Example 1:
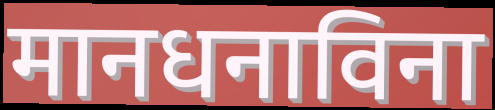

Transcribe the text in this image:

मानधनाविना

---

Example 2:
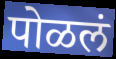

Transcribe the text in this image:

पोळलं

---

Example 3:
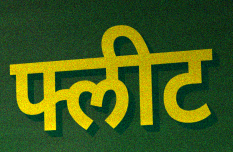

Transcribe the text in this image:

फ्लीट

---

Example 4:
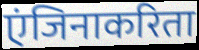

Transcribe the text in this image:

एंजिनाकरिता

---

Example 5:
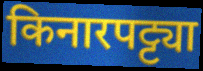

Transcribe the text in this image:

किनारपट्ट्या